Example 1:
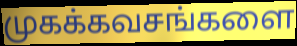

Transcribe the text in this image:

முகக்கவசங்களை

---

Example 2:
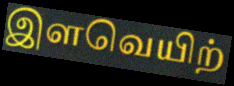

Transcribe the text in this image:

இளவெயிற்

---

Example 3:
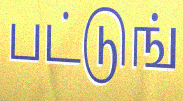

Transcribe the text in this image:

பட்டுங்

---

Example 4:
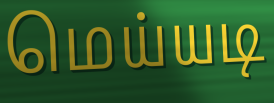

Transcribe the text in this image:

மெய்யடி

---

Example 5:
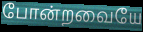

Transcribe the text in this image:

போன்றவையே